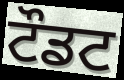
ਟੌਡਟ